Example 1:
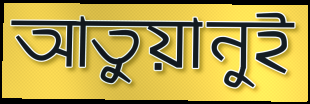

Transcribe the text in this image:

আতুয়ানুই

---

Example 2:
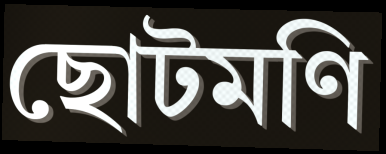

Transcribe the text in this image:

ছোটমণি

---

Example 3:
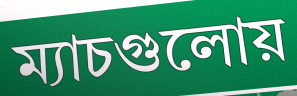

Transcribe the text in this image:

ম্যাচগুলোয়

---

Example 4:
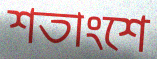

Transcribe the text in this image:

শতাংশে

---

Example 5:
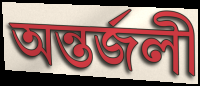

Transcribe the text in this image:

অন্তর্জলী